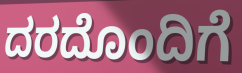
ದರದೊಂದಿಗೆ